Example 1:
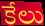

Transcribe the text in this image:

కేలు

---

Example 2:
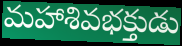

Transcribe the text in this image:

మహాశివభక్తుడు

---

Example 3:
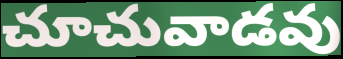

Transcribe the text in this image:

చూచువాడవు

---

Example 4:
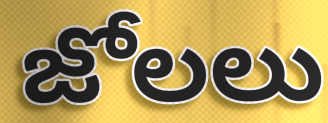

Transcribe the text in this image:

జోలలు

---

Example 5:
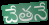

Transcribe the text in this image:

చేతనే